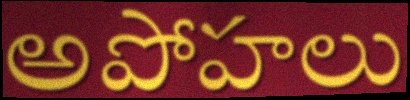
అపోహలు